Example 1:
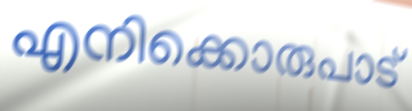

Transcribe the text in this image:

എനിക്കൊരുപാട്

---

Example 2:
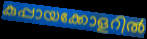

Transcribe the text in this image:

കുപ്പായക്കോളറിൽ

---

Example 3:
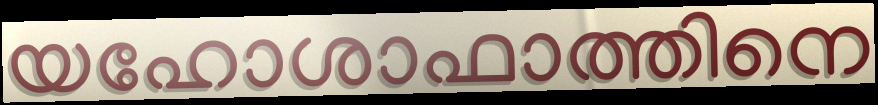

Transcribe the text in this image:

യഹോശാഫാത്തിനെ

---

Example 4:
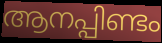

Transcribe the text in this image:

ആനപ്പിണ്ടം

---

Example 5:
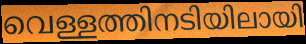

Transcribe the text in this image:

വെള്ളത്തിനടിയിലായി